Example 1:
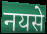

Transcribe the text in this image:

नयसे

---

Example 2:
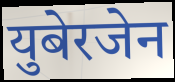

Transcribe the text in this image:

युबेरजेन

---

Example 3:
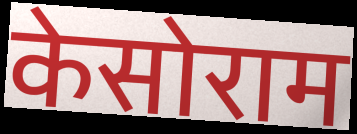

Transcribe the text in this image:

केसोराम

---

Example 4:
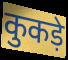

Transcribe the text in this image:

कुकड़े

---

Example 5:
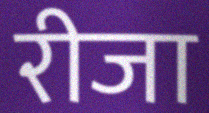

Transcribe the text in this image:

रीजा